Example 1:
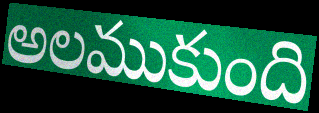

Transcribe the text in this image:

అలముకుంది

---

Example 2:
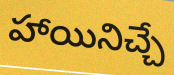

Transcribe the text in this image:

హాయినిచ్చే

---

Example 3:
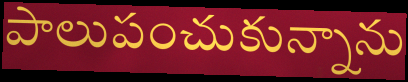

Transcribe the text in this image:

పాలుపంచుకున్నాను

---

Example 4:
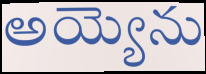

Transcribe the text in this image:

అయ్యెను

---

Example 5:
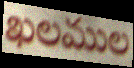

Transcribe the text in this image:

ఖలముల